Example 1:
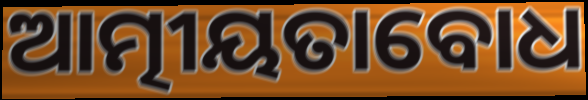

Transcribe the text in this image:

ଆତ୍ମୀୟତାବୋଧ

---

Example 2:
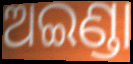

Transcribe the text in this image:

ଅଇଣ୍ଡା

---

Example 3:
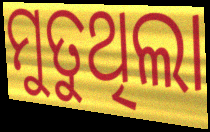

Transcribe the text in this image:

ମୁତୁଥିଲା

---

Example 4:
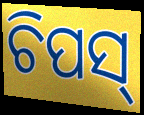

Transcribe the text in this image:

ଚିପସ୍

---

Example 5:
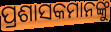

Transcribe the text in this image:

ପ୍ରଶାସକମାନଙ୍କୁ